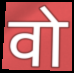
वो